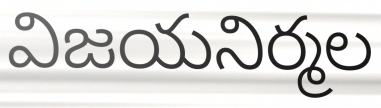
విజయనిర్మల